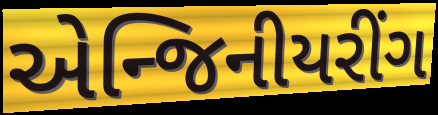
એન્જિનીયરીંગ